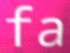
fa